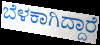
ಬೆಳಕಾಗಿದ್ದಾರೆ